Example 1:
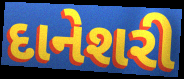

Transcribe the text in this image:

દાનેશરી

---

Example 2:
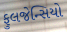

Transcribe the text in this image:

ફુલજેન્સિયો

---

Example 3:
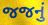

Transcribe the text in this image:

જજનું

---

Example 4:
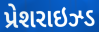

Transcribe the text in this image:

પ્રેશરાઇઝ્ડ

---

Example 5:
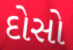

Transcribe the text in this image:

દોસો